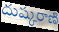
దుష్కరాణి